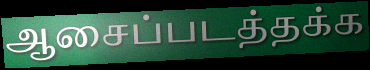
ஆசைப்படத்தக்க